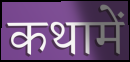
कथामें